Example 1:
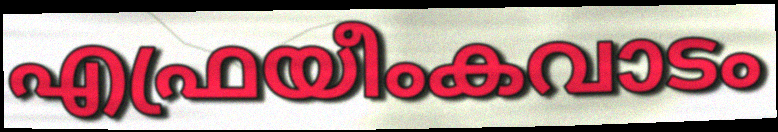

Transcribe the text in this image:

എഫ്രയീംകവാടം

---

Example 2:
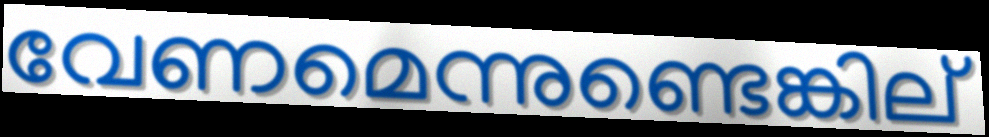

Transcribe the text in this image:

വേണമെന്നുണ്ടെങ്കില്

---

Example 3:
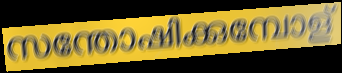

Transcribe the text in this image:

സന്തോഷിക്കുമ്പോള്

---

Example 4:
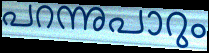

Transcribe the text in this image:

പറന്നുപാറും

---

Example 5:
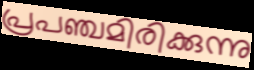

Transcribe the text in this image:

പ്രപഞ്ചമിരിക്കുന്നു